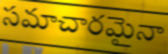
సమాచారమైనా